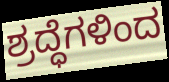
ಶ್ರದ್ಧೆಗಳಿಂದ